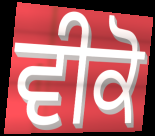
ਵੀਕੋ